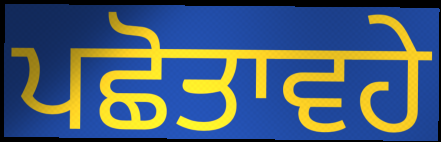
ਪਛੋਤਾਵਹੇ